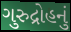
ગુરુદ્રોહનું